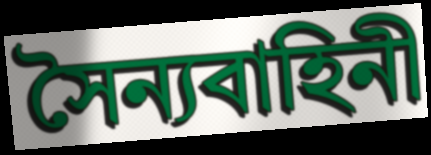
সৈন্যবাহিনী